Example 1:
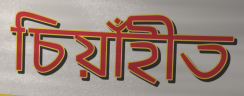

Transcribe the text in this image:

চিয়াঁহীত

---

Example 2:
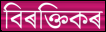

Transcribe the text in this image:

বিৰক্তিকৰ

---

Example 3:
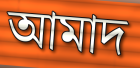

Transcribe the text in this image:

আমাদ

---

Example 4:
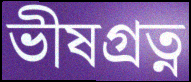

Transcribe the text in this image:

ভীষগ্ৰত্ন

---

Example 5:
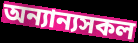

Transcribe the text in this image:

অন্যান্যসকল